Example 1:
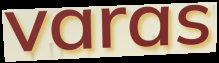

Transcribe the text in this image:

varas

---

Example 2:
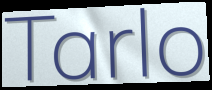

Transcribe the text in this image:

Tarlo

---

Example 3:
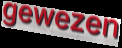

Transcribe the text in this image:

gewezen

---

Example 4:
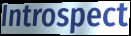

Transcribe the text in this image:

Introspect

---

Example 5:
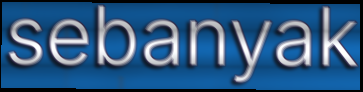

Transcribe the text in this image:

sebanyak